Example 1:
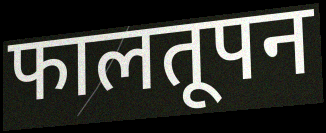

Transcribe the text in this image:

फालतूपन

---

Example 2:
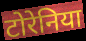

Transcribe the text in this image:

टोरेनिया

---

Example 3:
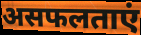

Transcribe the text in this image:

असफलताएं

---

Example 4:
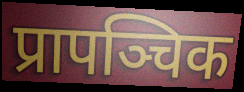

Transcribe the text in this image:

प्रापञ्चिक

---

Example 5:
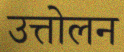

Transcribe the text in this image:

उत्तोलन